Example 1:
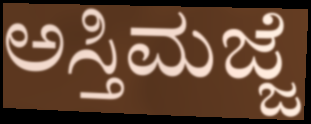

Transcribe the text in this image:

ಅಸ್ತಿಮಜ್ಜೆ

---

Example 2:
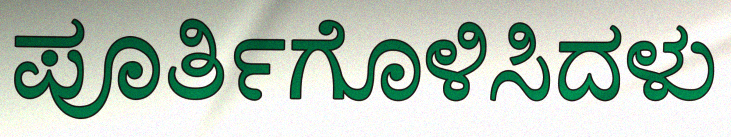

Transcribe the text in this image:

ಪೂರ್ತಿಗೊಳಿಸಿದಳು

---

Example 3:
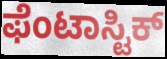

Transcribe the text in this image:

ಫೆಂಟಾಸ್ಟಿಕ್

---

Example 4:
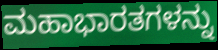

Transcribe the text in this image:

ಮಹಾಭಾರತಗಳನ್ನು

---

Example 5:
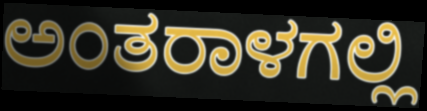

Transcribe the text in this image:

ಅಂತರಾಳಗಲ್ಲಿ